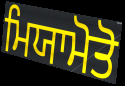
ਮਿਯਾਮੋਤੋ